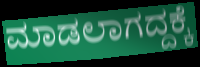
ಮಾಡಲಾಗದ್ದಕ್ಕೆ